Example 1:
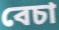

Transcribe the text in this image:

বেচা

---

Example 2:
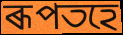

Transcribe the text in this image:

ৰূপতহে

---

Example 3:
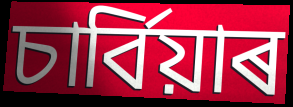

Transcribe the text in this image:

চাৰ্বিয়াৰ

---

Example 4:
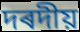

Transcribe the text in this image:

দৰদীয়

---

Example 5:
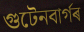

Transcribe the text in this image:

গুটেনবাৰ্গৰ